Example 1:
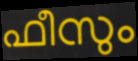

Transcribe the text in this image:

ഫീസും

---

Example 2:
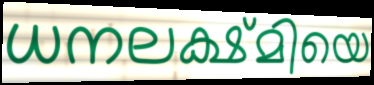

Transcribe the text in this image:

ധനലക്ഷ്മിയെ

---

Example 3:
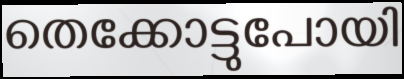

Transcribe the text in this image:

തെക്കോട്ടുപോയി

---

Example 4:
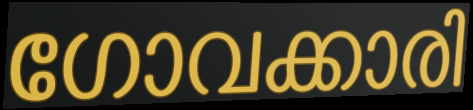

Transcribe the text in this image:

ഗോവക്കാരി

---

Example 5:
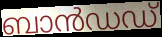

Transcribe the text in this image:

ബാൻഡഡ്